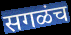
सगळंच